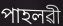
পাহলৱী